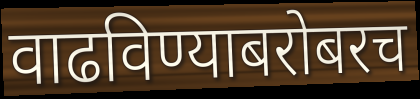
वाढविण्याबरोबरच